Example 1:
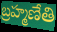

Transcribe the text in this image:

బ్రహ్మణేతి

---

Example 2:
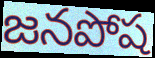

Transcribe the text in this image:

జనపోష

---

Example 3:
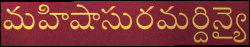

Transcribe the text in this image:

మహిషాసురమర్దిన్యై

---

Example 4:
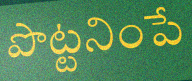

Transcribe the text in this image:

పొట్టనింపే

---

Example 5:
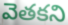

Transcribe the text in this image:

వెతకని